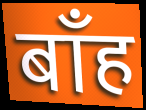
बाँह